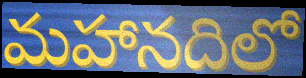
మహానదిలో